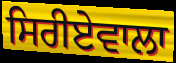
ਸਿਰੀਏਵਾਲਾ